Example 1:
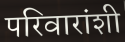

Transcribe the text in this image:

परिवारांशी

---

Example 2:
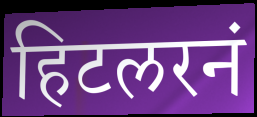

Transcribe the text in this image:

हिटलरनं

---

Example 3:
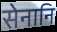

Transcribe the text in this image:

सेनानि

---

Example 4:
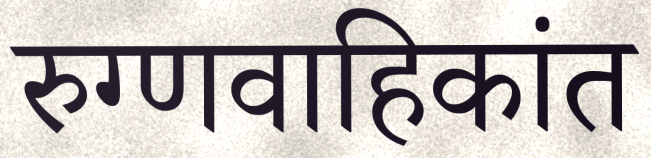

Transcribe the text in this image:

रुग्णवाहिकांत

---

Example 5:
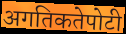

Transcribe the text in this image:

अगतिकतेपोटी